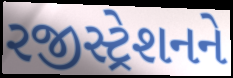
રજીસ્ટ્રેશનને